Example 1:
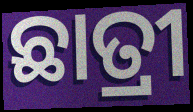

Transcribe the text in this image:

ଛାତ୍ରୀ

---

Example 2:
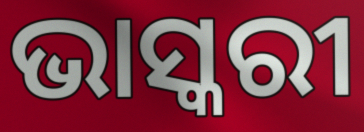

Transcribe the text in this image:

ଭାସ୍କରୀ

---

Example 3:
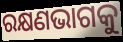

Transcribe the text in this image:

ରକ୍ଷଣଭାଗକୁ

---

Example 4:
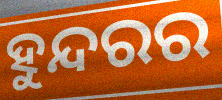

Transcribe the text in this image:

ହୁନ୍ଦରର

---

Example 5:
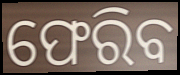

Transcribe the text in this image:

ଫେରିବ